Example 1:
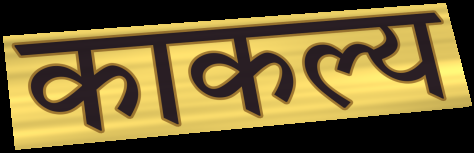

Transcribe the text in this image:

काकल्य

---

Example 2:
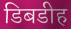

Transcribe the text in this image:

डिबडीह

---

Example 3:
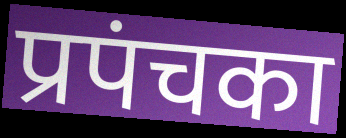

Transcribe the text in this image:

प्रपंचका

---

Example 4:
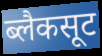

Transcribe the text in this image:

ब्लैकसूट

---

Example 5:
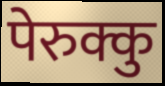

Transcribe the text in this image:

पेरुक्कु